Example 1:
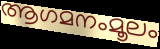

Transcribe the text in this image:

ആഗമനംമൂലം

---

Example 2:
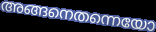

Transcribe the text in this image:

അങ്ങനെതന്നെയോ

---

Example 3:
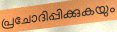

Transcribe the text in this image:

പ്രചോദിപ്പിക്കുകയും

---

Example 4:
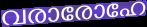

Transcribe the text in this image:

വരാരോഹേ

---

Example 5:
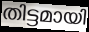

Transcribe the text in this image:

തിട്ടമായി